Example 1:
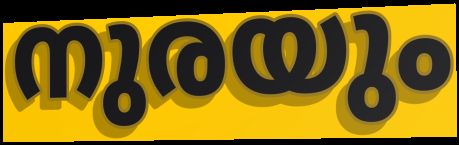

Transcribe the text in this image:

നുരയും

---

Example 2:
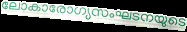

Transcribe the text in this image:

ലോകാരോഗ്യസംഘടനയുടെ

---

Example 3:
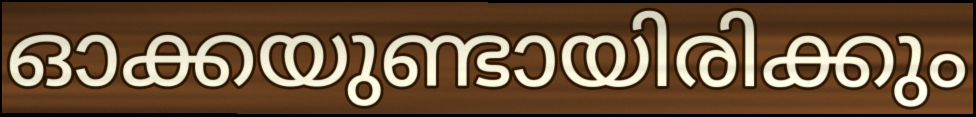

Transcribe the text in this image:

ഓക്കയുണ്ടായിരിക്കും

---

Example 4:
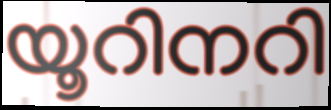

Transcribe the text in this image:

യൂറിനറി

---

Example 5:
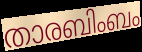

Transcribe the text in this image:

താരബിംബം